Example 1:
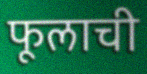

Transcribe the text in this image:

फूलाची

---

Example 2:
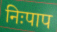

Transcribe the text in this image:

निःपाप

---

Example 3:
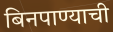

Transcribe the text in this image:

बिनपाण्याची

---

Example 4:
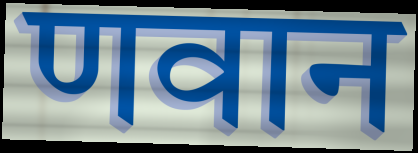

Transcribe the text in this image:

णवान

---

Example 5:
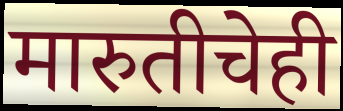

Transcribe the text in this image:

मारुतीचेही